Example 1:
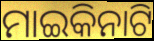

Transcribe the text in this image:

ମାଇକିନାଟି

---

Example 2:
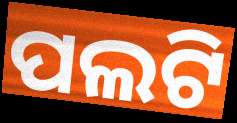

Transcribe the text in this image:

ପଲଟି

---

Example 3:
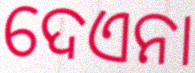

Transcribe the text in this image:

ଦେଏନା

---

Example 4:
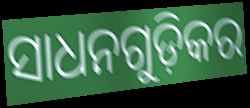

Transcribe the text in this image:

ସାଧନଗୁଡ଼ିକର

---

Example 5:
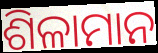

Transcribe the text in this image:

ଶିଳାମାନ